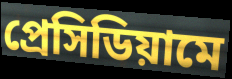
প্রেসিডিয়ামে